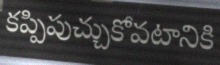
కప్పిపుచ్చుకోవటానికి